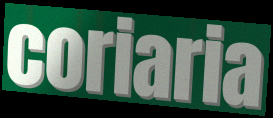
coriaria